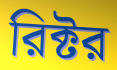
রিক্টর